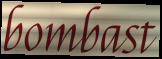
bombast